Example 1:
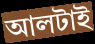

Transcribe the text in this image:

আলটাই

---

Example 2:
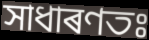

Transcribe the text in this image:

সাধাৰণতঃ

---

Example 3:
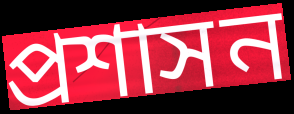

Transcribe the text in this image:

প্ৰশাসন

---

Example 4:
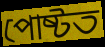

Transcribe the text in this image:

পোষ্টত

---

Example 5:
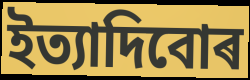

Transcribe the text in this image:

ইত্যাদিবোৰ